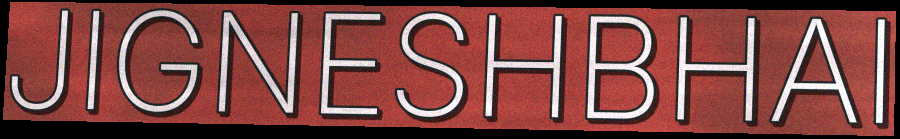
JIGNESHBHAI